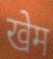
खेम